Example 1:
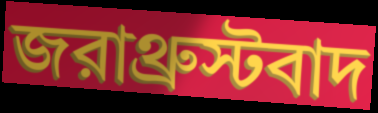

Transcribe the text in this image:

জরাথ্রুস্টবাদ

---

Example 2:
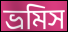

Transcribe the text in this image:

ভ্রমিস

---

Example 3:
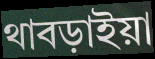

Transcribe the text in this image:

থাবড়াইয়া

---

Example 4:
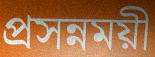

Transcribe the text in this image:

প্রসন্নময়ী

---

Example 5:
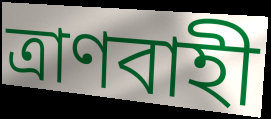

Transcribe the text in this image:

ত্রাণবাহী